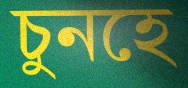
চুনহে